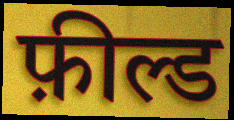
फ़ील्ड